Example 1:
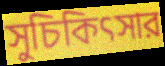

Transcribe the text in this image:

সুচিকিৎসার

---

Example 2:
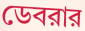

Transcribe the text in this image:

ডেবরার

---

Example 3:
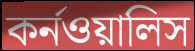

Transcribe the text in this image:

কর্নওয়ালিস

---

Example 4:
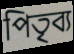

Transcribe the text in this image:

পিতৃব্য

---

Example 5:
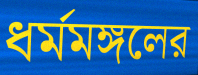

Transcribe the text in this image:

ধর্মমঙ্গলের